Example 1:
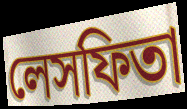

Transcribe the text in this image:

লেসফিতা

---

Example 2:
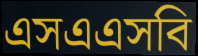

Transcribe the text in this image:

এসএএসবি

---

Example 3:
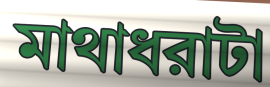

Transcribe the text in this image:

মাথাধরাটা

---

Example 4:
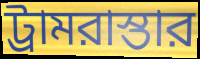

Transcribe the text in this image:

ট্রামরাস্তার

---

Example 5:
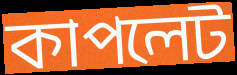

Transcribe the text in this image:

কাপলেট